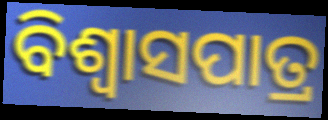
ବିଶ୍ୱାସପାତ୍ର